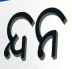
ନ୍ଦନ